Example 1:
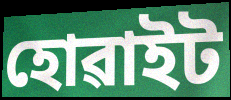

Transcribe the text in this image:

হোৱাইট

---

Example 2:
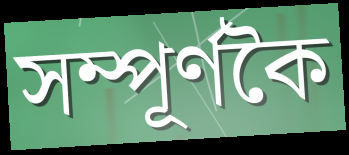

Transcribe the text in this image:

সম্পূৰ্ণকৈ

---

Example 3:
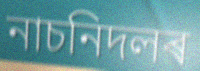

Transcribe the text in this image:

নাচনিদলৰ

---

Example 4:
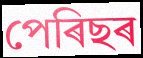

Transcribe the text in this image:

পেৰিছৰ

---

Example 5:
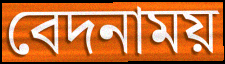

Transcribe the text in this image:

বেদনাময়